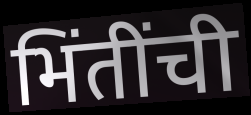
भिंतींची